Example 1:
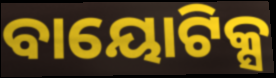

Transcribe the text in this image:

ବାୟୋଟିକ୍ସ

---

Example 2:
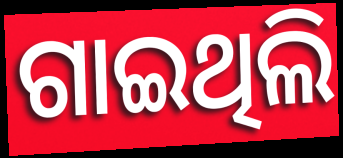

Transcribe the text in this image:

ଗାଇଥିଲି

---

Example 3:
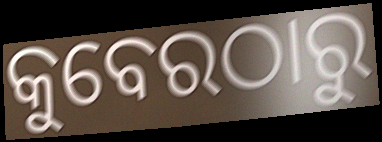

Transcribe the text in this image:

କୁବେରଠାରୁ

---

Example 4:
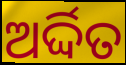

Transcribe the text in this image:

ଅର୍ଦ୍ଦିତ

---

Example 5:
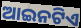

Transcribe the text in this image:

ଆଇନଟିଏ